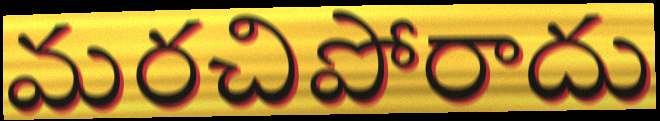
మరచిపోరాదు